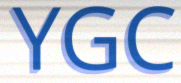
YGC